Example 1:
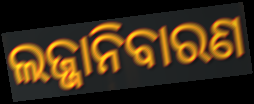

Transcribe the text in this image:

ଲଜ୍ଜାନିବାରଣ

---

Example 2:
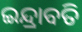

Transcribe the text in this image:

ଇନ୍ଦ୍ରାବତି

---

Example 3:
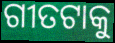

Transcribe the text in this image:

ଗୀତଟାକୁ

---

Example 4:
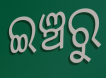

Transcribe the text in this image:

ଇଞ୍ଚରୁ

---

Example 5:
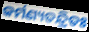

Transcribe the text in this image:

କର୍ମଣ୍ୟତନ୍ଦ୍ରିତଃ